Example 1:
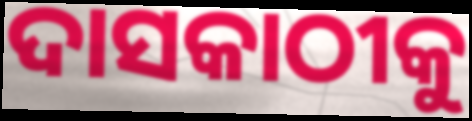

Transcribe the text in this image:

ଦାସକାଠୀକୁ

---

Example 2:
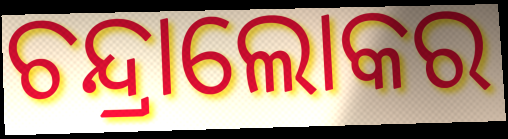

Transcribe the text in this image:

ଚନ୍ଦ୍ରାଲୋକର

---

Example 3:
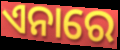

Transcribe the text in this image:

ଏନାରେ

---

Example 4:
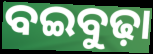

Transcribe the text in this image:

ବଇବୁଢ଼ା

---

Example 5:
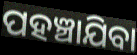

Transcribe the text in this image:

ପହଞ୍ଚାଯିବା